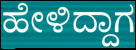
ಹೇಳಿದ್ದಾಗ